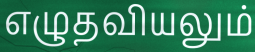
எழுதவியலும்